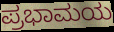
ಪ್ರಭಾಮಯ